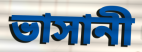
ভাসানী